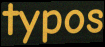
typos